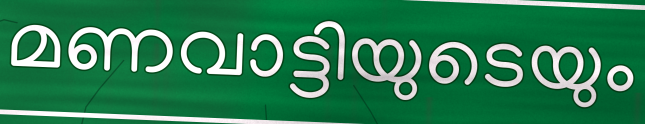
മണവാട്ടിയുടെയും